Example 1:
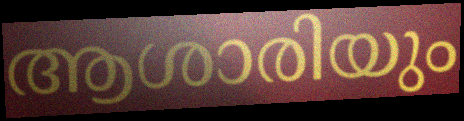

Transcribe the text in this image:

ആശാരിയും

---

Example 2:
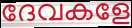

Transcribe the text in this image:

ദേവകളേ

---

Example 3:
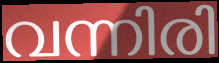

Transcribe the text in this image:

വന്നിരി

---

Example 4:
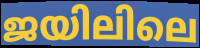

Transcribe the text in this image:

ജയിലിലെ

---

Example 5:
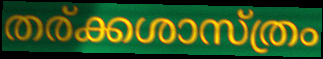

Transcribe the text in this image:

തര്ക്കശാസ്ത്രം